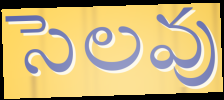
సెలవు